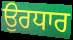
ਉਰਧਾਰ